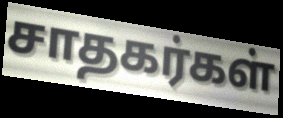
சாதகர்கள்